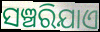
ସଞ୍ଚରିଯାଏ